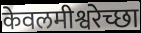
केवलमीश्वरेच्छा